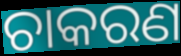
ଚାକରଣ